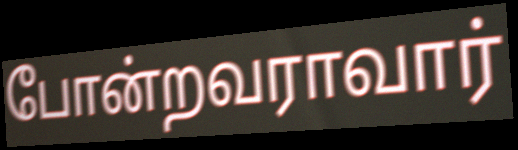
போன்றவராவார்